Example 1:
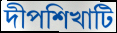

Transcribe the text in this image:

দীপশিখাটি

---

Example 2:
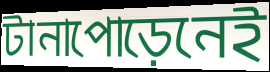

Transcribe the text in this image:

টানাপোড়েনেই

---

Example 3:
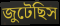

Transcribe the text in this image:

জুটেছিস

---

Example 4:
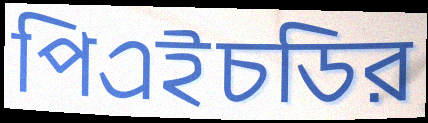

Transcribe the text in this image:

পিএইচডির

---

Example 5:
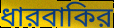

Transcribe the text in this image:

ধারবাকির